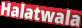
Halatwala